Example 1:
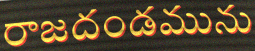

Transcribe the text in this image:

రాజదండమును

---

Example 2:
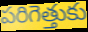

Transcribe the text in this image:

పరిగెత్తుకు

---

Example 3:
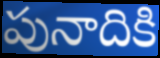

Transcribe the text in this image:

పునాదికి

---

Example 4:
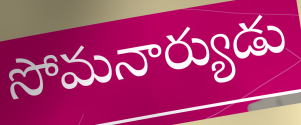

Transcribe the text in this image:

సోమనార్యుడు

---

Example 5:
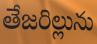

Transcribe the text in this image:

తేజరిల్లును